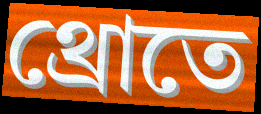
থ্রোতে